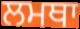
ਲਮਥਾ